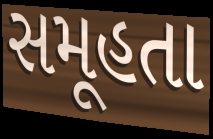
સમૂહતા